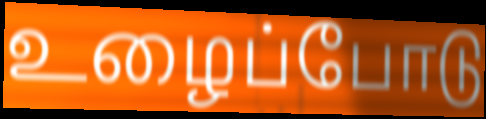
உழைப்போடு